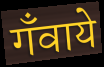
गँवाये